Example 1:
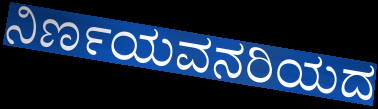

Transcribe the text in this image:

ನಿರ್ಣಯವನರಿಯದ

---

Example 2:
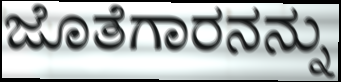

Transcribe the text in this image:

ಜೊತೆಗಾರನನ್ನು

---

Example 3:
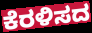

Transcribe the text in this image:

ಕೆರಳಿಸದ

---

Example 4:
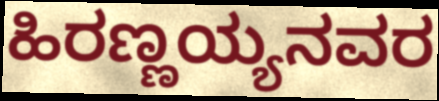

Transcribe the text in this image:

ಹಿರಣ್ಣಯ್ಯನವರ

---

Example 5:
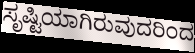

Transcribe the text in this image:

ಸೃಷ್ಟಿಯಾಗಿರುವುದರಿಂದ